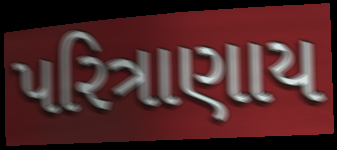
પરિત્રાણાય